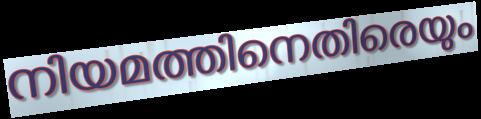
നിയമത്തിനെതിരെയും